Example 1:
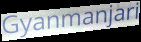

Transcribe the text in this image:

Gyanmanjari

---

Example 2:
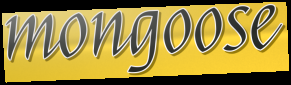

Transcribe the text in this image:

mongoose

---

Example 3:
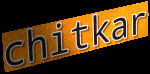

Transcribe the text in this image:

chitkar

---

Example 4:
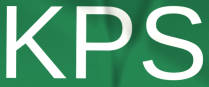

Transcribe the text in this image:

KPS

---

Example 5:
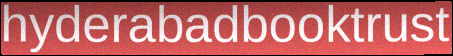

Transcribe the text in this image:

hyderabadbooktrust